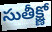
సుతీక్ష్ణో